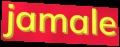
jamale